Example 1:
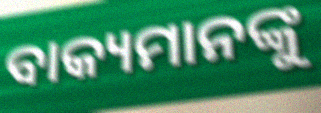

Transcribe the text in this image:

ବାକ୍ୟମାନଙ୍କୁ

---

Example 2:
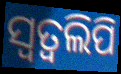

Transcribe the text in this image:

ସ୍ୱତ୍ୱଲିପି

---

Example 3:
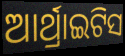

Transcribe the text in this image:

ଆର୍ଥ୍ରାଇଟିସ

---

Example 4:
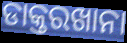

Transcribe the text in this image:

ଡାକ୍ତରଖାନା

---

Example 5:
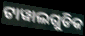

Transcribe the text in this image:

ଟାୱାଲଗୁଡିକ